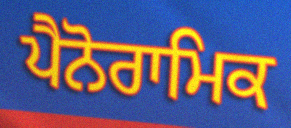
ਪੈਨੋਰਾਮਿਕ